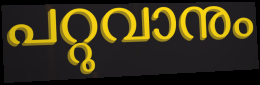
പറ്റുവാനും